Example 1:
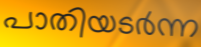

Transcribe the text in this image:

പാതിയടർന്ന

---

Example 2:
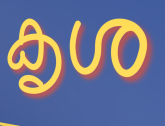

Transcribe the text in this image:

കൃശ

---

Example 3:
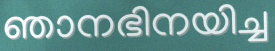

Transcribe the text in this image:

ഞാനഭിനയിച്ച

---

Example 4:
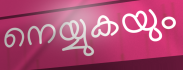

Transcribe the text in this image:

നെയ്യുകയും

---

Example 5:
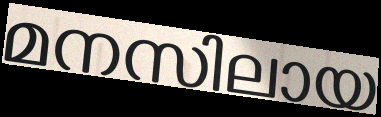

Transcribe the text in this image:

മനസിലായ